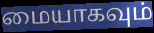
மையாகவும்